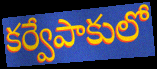
కర్వేపాకులో